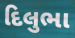
દિલુભા